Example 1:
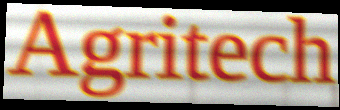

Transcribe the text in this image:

Agritech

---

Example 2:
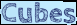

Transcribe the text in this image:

Cubes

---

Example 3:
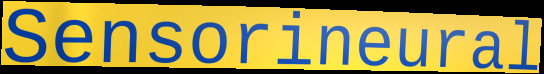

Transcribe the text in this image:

Sensorineural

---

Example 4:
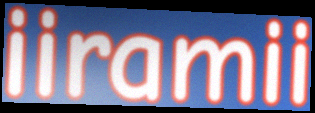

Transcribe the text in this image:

iiramii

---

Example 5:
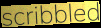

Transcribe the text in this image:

scribbled